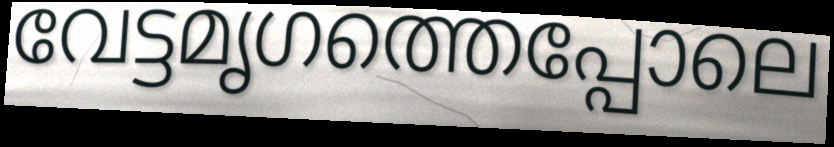
വേട്ടമൃഗത്തെപ്പോലെ